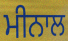
ਮੀਨਾਲ